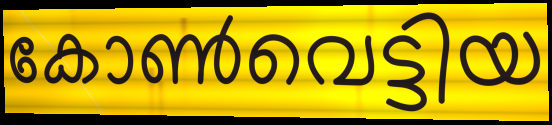
കോൺവെട്ടിയ